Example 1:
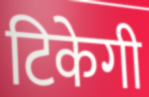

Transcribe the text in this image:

टिकेगी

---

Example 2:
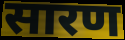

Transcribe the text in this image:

सारण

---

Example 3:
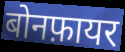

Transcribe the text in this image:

बोनफ़ायर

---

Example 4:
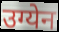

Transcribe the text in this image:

उग्येन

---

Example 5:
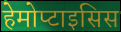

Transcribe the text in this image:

हेमोप्टाइसिस